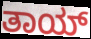
ತಾಯ್